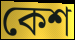
কেশ